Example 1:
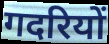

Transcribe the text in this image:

गदरियों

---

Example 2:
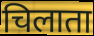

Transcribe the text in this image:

चिलाता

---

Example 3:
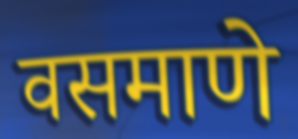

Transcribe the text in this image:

वसमाणे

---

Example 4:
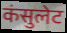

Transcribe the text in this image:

कंसुलेट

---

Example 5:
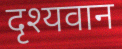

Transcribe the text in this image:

दृश्यवान